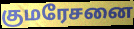
குமரேசனை